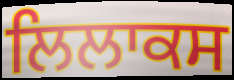
ਲਿਲਾਕਸ